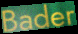
Bader